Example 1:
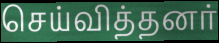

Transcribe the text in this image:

செய்வித்தனர்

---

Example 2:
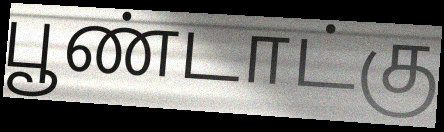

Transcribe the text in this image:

பூண்டாட்கு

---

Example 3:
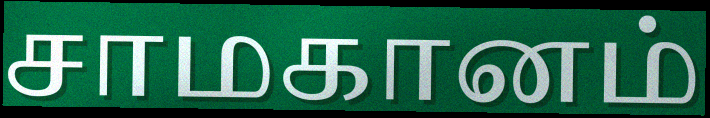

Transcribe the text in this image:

சாமகானம்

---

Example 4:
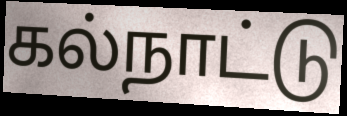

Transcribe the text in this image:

கல்நாட்டு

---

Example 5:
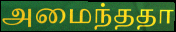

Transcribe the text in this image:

அமைந்ததா